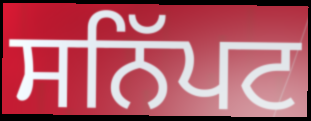
ਸਨਿੱਪਟ